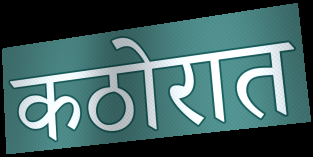
कठोरात